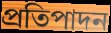
প্রতিপাদন